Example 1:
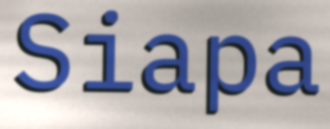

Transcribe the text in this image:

Siapa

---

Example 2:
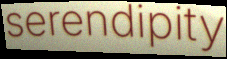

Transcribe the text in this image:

serendipity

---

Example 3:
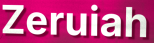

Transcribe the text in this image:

Zeruiah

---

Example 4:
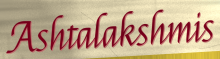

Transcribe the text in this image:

Ashtalakshmis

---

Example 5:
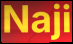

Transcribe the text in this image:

Naji